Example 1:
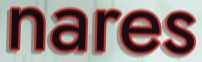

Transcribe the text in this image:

nares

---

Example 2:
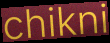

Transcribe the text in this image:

chikni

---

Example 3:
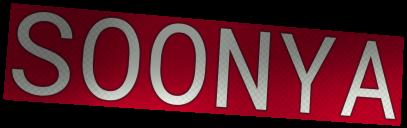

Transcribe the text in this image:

SOONYA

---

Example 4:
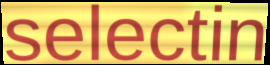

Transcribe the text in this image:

selectin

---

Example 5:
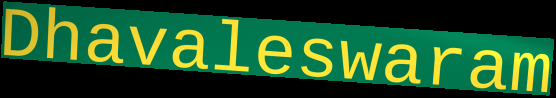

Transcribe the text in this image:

Dhavaleswaram